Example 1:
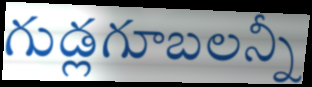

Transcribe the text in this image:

గుడ్లగూబలన్నీ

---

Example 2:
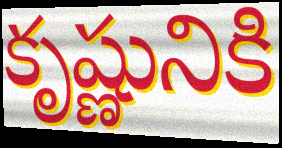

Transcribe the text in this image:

కృష్ణునికి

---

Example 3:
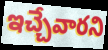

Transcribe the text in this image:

ఇచ్చేవారని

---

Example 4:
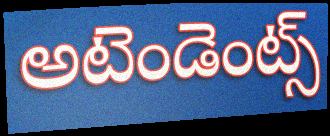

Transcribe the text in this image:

అటెండెంట్స్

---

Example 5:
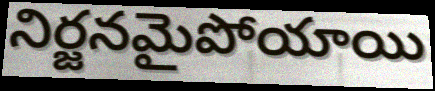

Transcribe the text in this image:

నిర్జనమైపోయాయి